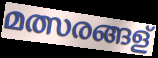
മത്സരങ്ങള്